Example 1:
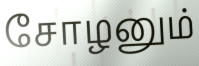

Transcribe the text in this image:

சோழனும்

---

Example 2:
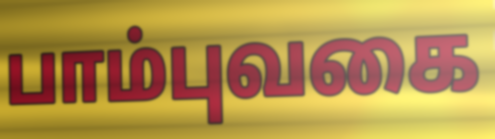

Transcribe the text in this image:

பாம்புவகை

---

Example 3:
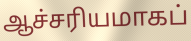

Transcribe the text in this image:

ஆச்சரியமாகப்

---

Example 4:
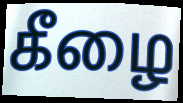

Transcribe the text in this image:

கீழை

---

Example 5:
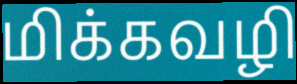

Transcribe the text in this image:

மிக்கவழி